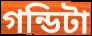
গন্ডিটা